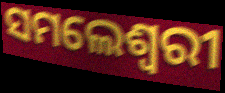
ସମଲେଶ୍ୱରୀ